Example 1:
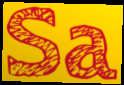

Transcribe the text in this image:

Sa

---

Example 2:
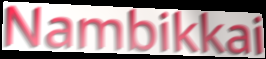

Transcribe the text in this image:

Nambikkai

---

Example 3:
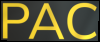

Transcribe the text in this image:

PAC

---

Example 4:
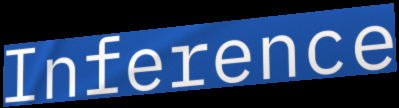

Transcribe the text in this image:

Inference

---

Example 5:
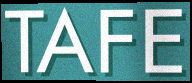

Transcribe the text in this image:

TAFE